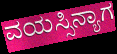
ವಯಸ್ಸಿನ್ಯಾಗ